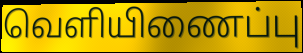
வெளியிணைப்பு